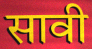
सावी